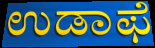
ಉಡಾಫೆ